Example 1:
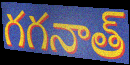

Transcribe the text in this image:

గగనాత్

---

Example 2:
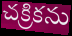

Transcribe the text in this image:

చక్రికను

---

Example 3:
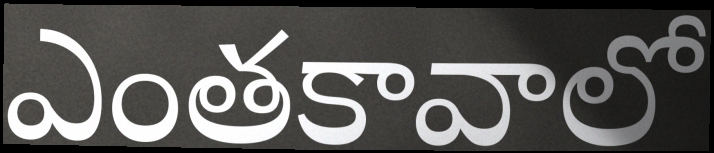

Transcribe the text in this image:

ఎంతకావాలో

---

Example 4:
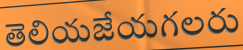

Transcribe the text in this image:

తెలియజేయగలరు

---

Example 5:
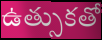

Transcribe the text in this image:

ఉత్సుకతో